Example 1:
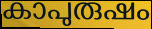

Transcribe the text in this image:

കാപുരുഷം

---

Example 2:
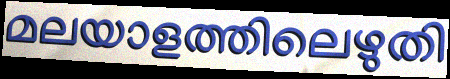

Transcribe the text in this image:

മലയാളത്തിലെഴുതി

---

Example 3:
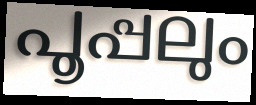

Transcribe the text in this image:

പൂപ്പലും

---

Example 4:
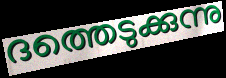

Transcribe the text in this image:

ദത്തെടുക്കുന്നു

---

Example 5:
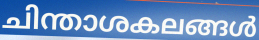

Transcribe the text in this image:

ചിന്താശകലങ്ങൾ